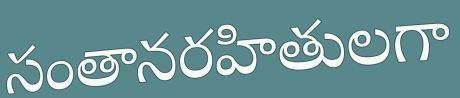
సంతానరహితులగా